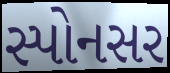
સ્પોનસર